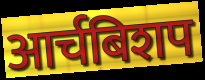
आर्चबिशप